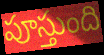
పూస్తుంది